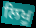
ਲਿਖੂ